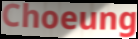
Choeung